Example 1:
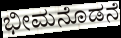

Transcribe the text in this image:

ಭೀಮನೊಡನೆ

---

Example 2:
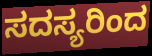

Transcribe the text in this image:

ಸದಸ್ಯರಿಂದ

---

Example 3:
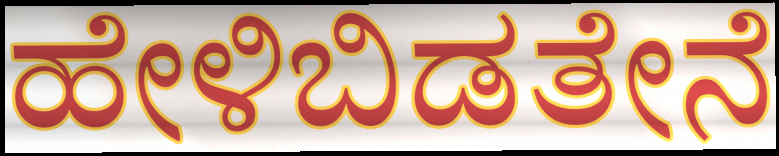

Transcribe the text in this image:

ಹೇಳಿಬಿಡತೇನೆ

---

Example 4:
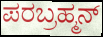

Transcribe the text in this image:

ಪರಬ್ರಹ್ಮನ್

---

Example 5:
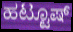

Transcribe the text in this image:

ಹಟ್ಟೂಷ್